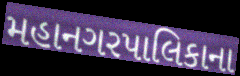
મહાનગરપાલિકાના